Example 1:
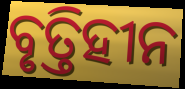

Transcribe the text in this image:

ବୃତ୍ତିହୀନ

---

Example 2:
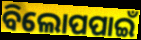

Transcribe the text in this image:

ବିଲୋପପାଇଁ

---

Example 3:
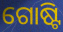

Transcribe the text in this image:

ଗୋଷ୍ଟି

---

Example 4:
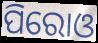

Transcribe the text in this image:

ପିରୋଓ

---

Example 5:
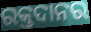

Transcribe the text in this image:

ରକ୍ତଦାନର